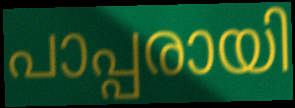
പാപ്പരായി